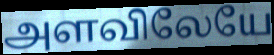
அளவிலேயே